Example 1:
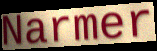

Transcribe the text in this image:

Narmer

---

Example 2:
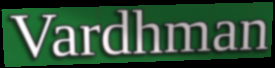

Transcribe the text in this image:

Vardhman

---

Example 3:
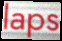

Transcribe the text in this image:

laps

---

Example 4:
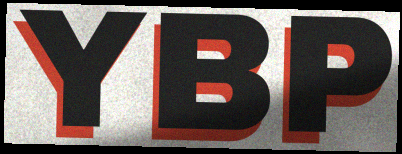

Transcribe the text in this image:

YBP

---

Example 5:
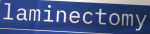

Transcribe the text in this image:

laminectomy